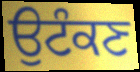
ਉਟੰਕਣ